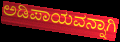
ಅಡಿಪಾಯವನ್ನಾಗಿ